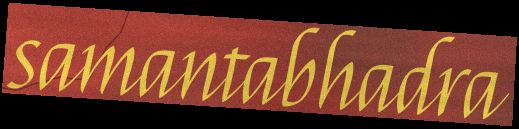
samantabhadra